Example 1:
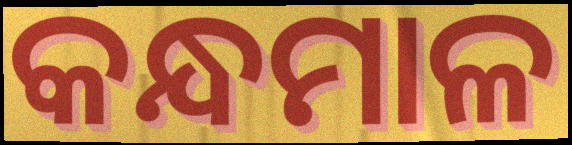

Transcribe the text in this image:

କନ୍ଧମାଳ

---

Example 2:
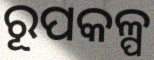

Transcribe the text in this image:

ରୂପକଳ୍ପ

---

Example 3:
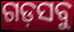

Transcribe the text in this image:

ଗଡ଼ସବୁ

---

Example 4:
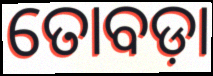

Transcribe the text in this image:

ତୋବଡ଼ା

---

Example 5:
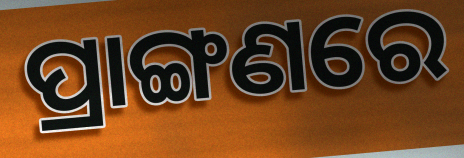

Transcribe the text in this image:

ପ୍ରାଙ୍ଗଣରେ